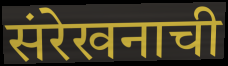
संरेखनाची